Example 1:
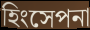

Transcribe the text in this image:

হিংসেপনা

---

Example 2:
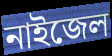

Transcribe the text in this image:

নাইজেল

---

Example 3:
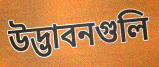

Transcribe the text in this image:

উদ্ভাবনগুলি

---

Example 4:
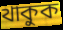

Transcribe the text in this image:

থাকুক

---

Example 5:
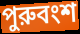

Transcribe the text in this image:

পুরুবংশ